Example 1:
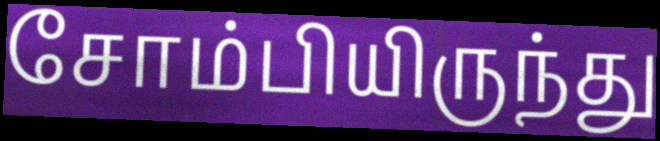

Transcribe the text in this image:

சோம்பியிருந்து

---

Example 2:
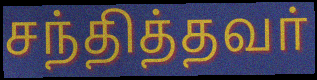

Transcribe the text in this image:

சந்தித்தவர்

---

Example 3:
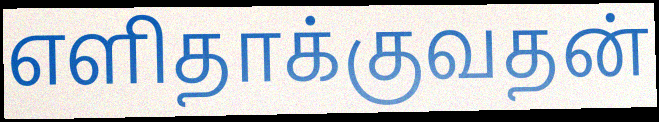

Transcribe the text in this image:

எளிதாக்குவதன்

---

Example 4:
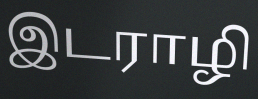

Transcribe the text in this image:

இடராழி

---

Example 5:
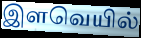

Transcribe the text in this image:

இளவெயில்